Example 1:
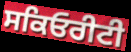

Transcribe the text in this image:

ਸਕਿਓਰੀਟੀ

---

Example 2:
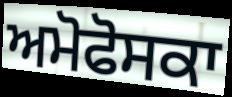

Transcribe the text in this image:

ਅਮੋਫੋਸਕਾ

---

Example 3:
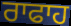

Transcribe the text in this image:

ਰਾਫਾਹ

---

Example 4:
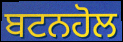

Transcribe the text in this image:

ਬਟਨਹੋਲ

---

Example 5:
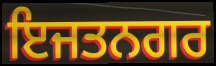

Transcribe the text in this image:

ਇਜਤਨਗਰ